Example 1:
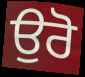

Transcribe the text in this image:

ਉਰੋ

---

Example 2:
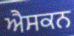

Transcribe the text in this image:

ਐਸਕਨ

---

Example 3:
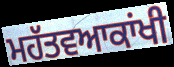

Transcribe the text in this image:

ਮਹੱਤਵਆਕਾਂਖੀ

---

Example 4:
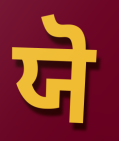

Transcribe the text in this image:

ਯੋ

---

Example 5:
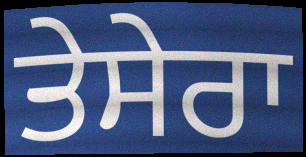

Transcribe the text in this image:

ਤੇਸੇਰਾ